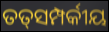
ତତ୍‍ସମ୍ପର୍କୀୟ